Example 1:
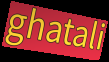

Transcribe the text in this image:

ghatali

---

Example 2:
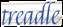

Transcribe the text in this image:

treadle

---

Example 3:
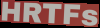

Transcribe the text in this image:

HRTFs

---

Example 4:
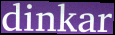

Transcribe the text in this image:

dinkar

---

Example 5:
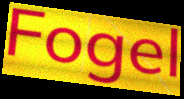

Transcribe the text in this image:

Fogel